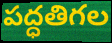
పద్ధతిగల